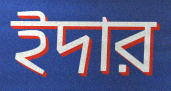
ইদার